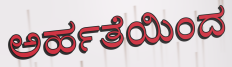
ಅರ್ಹತೆಯಿಂದ